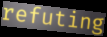
refuting